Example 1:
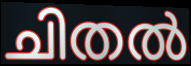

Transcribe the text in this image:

ചിതൽ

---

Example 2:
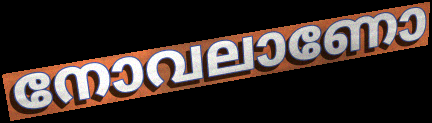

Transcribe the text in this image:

നോവലാണോ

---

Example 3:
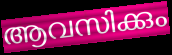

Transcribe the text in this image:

ആവസിക്കും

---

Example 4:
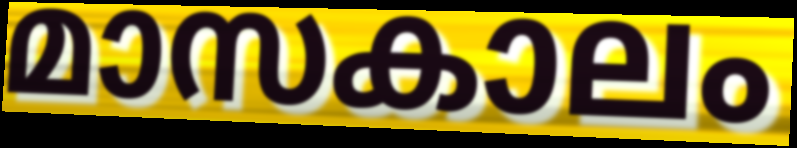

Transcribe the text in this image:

മാസകാലം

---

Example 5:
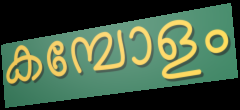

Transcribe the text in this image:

കമ്പോളം